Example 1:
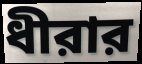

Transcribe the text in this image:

ধীরার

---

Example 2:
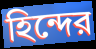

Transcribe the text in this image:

হিন্দের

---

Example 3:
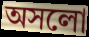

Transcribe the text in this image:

অসলো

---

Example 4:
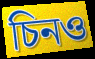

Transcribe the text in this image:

চিনও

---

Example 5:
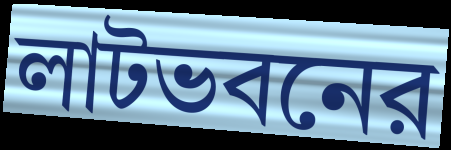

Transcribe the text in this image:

লাটভবনের